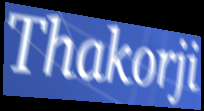
Thakorji